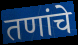
तणांचे